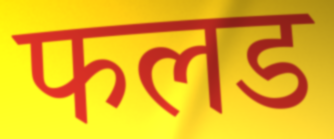
फलड